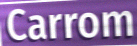
Carrom